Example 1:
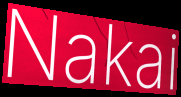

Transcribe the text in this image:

Nakai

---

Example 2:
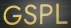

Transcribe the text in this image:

GSPL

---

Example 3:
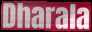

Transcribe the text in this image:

Dharala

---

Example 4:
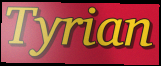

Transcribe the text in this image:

Tyrian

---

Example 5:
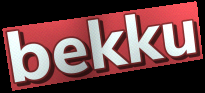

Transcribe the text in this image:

bekku